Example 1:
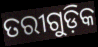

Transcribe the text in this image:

ତରୀଗୁଡ଼ିକ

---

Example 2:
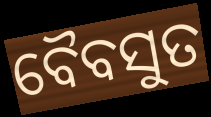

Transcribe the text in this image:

ବୈବସୁତ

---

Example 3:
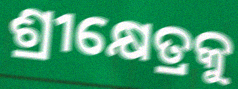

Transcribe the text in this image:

ଶ୍ରୀକ୍ଷେତ୍ରକୁ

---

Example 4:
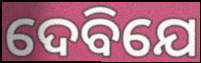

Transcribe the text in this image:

ଦେବିଯେ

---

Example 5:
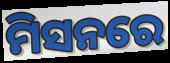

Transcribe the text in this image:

ମିସନରେ